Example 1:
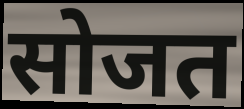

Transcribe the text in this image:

सोजत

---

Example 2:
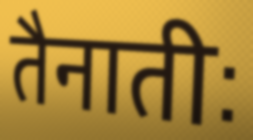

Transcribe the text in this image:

तैनातीः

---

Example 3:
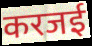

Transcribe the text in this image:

करजई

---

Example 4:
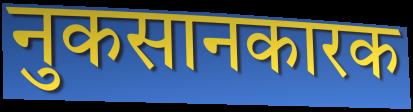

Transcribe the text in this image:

नुकसानकारक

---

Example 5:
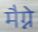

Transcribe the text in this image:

मैग्ने